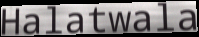
Halatwala